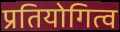
प्रतियोगित्व